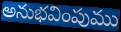
అనుభవింపుము